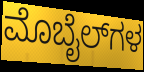
ಮೊಬೈಲ್‌ಗಳ